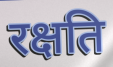
रक्षति